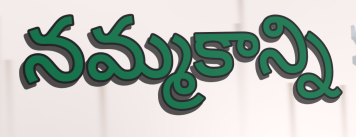
నమ్మకాన్ని